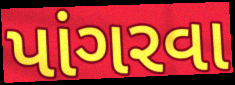
પાંગરવા